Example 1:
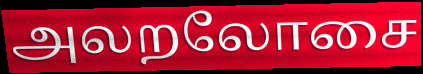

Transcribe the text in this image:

அலறலோசை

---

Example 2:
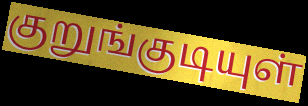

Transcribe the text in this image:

குறுங்குடியுள்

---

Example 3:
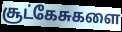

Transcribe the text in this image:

சூட்கேசுகளை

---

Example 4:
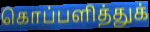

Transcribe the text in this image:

கொப்பளித்துக்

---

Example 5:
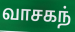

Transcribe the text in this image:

வாசகந்